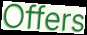
Offers